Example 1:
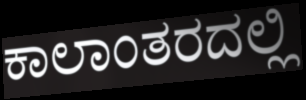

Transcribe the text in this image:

ಕಾಲಾಂತರದಲ್ಲಿ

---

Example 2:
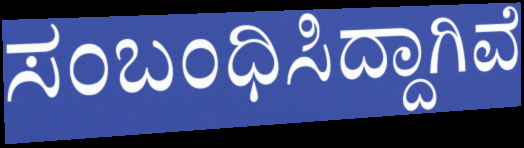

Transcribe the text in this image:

ಸಂಬಂಧಿಸಿದ್ದಾಗಿವೆ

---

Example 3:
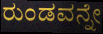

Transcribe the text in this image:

ರುಂಡವನ್ನೇ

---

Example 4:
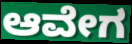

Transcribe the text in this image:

ಆವೇಗ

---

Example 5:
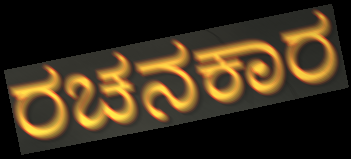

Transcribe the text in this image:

ರಚನಕಾರ